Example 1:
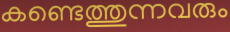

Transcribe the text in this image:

കണ്ടെത്തുന്നവരും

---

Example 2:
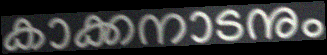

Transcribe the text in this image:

കാക്കനാടനും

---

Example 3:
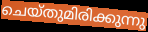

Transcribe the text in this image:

ചെയ്തുമിരിക്കുന്നു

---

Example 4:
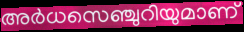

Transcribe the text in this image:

അർധസെഞ്ചുറിയുമാണ്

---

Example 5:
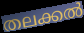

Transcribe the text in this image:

തലക്കൽ